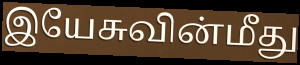
இயேசுவின்மீது